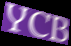
YCB